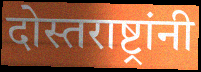
दोस्तराष्ट्रांनी